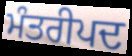
ਮੰਤਰੀਪਦ